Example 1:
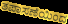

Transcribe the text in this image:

ತಪಾಸಣೆಯಿಂದ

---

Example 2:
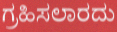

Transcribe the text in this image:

ಗ್ರಹಿಸಲಾರದು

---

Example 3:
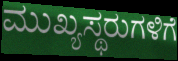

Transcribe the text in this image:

ಮುಖ್ಯಸ್ಥರುಗಳಿಗೆ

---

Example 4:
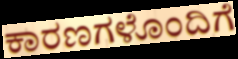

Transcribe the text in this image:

ಕಾರಣಗಳೊಂದಿಗೆ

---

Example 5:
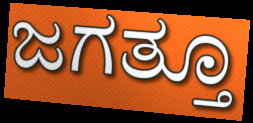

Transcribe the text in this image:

ಜಗತ್ತೂ